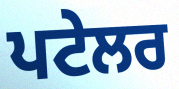
ਪਟੇਲਰ